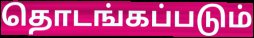
தொடங்கப்படும்